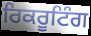
ਰਿਕਰੂਟਿੰਗ